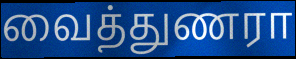
வைத்துணரா